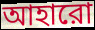
আহারো